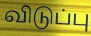
விடுப்பு